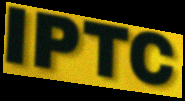
IPTC